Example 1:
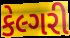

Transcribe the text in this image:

કેલ્ગરી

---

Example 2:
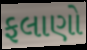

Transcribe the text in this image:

ફલાણો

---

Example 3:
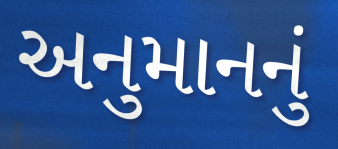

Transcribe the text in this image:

અનુમાનનું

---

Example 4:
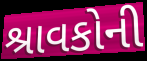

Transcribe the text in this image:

શ્રાવકોની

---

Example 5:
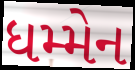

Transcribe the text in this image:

ધમ્મેન